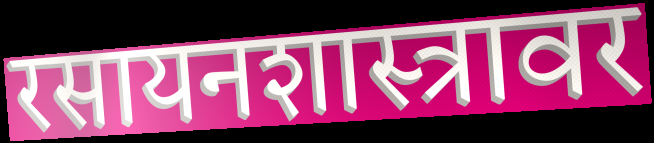
रसायनशास्त्रावर